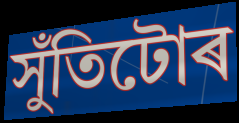
সুঁতিটোৰ